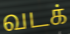
வடக்